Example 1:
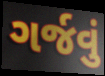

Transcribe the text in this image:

ગર્જવું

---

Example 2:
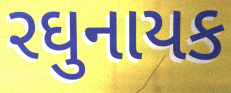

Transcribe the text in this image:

રઘુનાયક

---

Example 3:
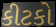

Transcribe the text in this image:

કીટકો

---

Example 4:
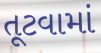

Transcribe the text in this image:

તૂટવામાં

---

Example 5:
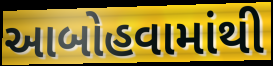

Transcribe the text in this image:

આબોહવામાંથી